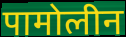
पामोलीन